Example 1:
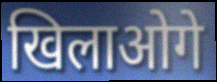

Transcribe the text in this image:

खिलाओगे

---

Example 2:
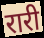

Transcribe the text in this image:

रारी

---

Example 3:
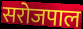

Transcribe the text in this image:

सरोजपाल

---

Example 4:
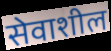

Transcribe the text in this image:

सेवाशील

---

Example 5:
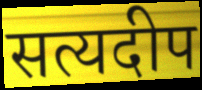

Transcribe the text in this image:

सत्यदीप